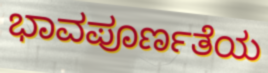
ಭಾವಪೂರ್ಣತೆಯ